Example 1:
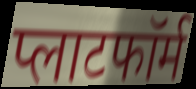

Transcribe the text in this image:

प्लाटफॉर्म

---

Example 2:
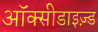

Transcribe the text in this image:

ऑक्सीडाइज़्ड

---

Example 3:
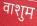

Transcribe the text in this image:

वाशुम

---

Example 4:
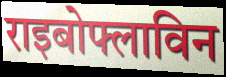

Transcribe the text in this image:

राइबोफ्लाविन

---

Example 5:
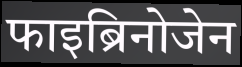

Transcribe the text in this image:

फाइब्रिनोजेन